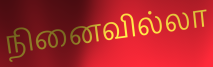
நினைவில்லா